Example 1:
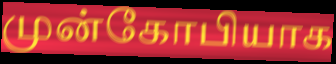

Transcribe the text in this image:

முன்கோபியாக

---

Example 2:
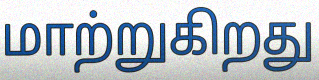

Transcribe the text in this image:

மாற்றுகிறது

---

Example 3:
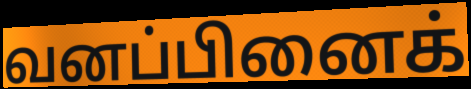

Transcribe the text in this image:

வனப்பினைக்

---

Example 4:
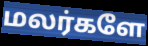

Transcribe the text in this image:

மலர்களே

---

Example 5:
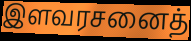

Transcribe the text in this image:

இளவரசனைத்